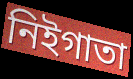
নিইগাতা